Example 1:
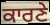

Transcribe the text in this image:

ਕਾਰਣੇ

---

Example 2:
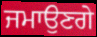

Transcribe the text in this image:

ਜਮਾਉਣਗੇ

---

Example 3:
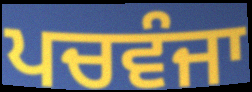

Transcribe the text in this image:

ਪਚਵੰਜਾ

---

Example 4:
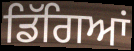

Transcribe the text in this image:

ਡਿੱਗਿਆਂ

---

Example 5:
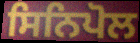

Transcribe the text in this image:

ਸਿਨਿਪੋਲ